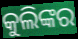
କୁଲିଙ୍କର